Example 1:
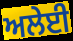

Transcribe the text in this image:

ਅਲੇਈ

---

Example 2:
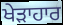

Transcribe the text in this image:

ਖੇੜਾਹਾਰ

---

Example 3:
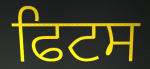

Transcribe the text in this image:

ਫਿਟਸ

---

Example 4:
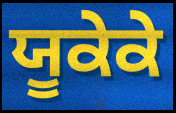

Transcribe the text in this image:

ਯੂਕੇਕੇ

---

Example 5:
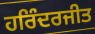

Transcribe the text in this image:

ਹਰਿੰਦਰਜੀਤ